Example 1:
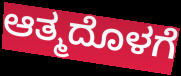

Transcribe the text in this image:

ಆತ್ಮದೊಳಗೆ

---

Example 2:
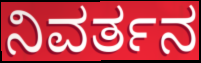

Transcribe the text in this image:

ನಿವರ್ತನ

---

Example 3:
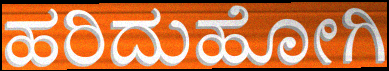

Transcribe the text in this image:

ಹರಿದುಹೋಗಿ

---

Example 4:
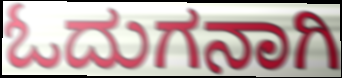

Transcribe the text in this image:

ಓದುಗನಾಗಿ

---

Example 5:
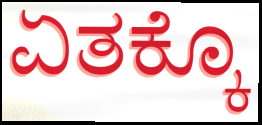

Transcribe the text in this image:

ಏತಕ್ಕೊ